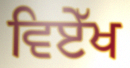
ਵਿਏੱਖ